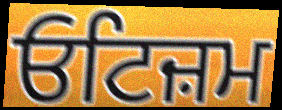
ਓਟਿਜ਼ਮ